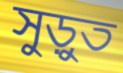
সুড়ুত